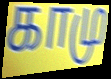
காமு